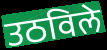
उठविले